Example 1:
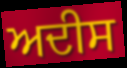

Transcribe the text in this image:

ਅਦੀਸ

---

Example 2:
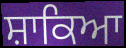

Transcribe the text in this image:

ਸ਼ਾਕਿਆ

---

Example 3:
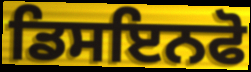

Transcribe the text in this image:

ਡਿਸਇਨਫੋ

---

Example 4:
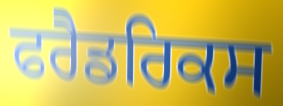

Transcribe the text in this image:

ਫਰੈਡਰਿਕਸ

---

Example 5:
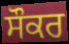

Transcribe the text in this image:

ਸੌਕਰ